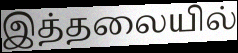
இத்தலையில்